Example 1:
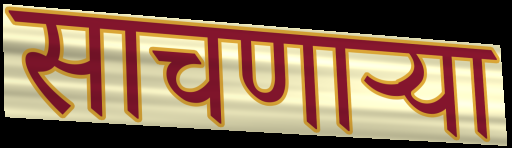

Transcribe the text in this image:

साचणार्‍या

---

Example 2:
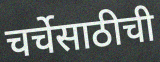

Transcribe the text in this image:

चर्चेसाठीची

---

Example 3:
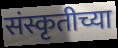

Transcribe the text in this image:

संस्कृतीच्या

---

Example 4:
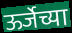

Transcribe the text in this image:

ऊर्जेच्या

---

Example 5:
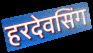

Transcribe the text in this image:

हरदेवसिंग